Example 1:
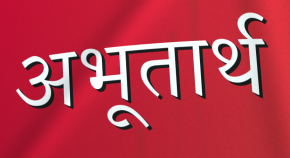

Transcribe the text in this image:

अभूतार्थ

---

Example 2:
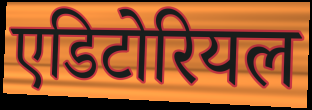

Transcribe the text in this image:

एडिटोरियल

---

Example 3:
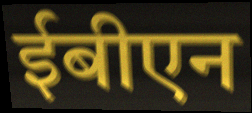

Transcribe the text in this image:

ईबीएन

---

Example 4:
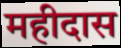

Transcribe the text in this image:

महीदास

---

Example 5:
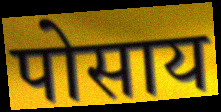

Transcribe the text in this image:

पोसाय